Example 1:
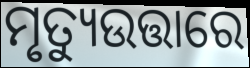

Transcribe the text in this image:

ମୃତ୍ୟୁଉତ୍ତାରେ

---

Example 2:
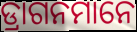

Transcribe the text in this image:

ଡ୍ରାଗନମାନେ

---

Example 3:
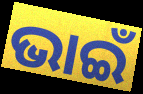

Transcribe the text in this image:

ଭାଇଁ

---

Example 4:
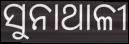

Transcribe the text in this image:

ସୁନାଥାଳୀ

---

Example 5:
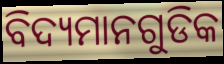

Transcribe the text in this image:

ବିଦ୍ୟମାନଗୁଡିକ